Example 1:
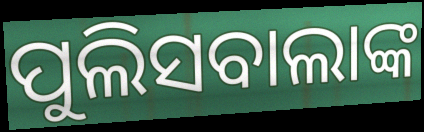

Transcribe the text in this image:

ପୁଲିସବାଲାଙ୍କ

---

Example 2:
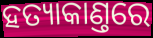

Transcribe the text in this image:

ହତ୍ୟାକାଣ୍ତରେ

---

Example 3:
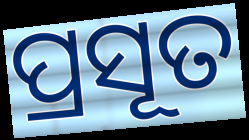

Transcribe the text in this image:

ପ୍ରସୂତ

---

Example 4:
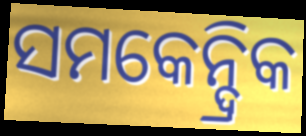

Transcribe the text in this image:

ସମକେନ୍ଦ୍ରିକ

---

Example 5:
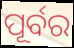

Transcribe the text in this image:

ପୂର୍ବର